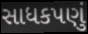
સાધકપણું